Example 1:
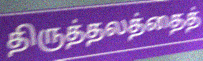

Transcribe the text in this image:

திருத்தலத்தைத்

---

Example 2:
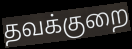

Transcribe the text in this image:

தவக்குறை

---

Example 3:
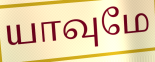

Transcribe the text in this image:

யாவுமே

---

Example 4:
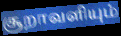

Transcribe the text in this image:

சூறாவளியும்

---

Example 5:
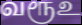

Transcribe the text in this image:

வரூஉ